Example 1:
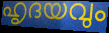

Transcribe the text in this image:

ഹൃദയവും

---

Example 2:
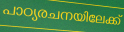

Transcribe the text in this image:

പാഠ്യരചനയിലേക്ക്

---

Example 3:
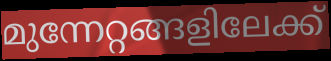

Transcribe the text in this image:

മുന്നേറ്റങ്ങളിലേക്ക്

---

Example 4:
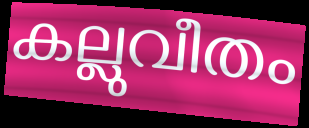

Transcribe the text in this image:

കല്ലുവീതം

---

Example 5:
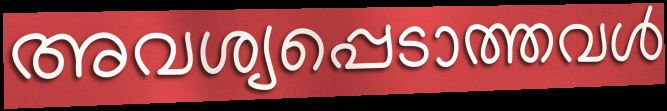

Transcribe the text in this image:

അവശ്യപ്പെടാത്തവൾ